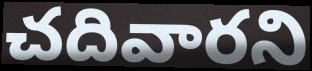
చదివారని